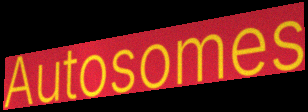
Autosomes